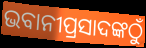
ଭବାନୀପ୍ରସାଦଙ୍କଠୁଁ